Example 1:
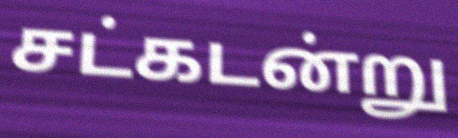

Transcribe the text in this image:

சட்கடன்று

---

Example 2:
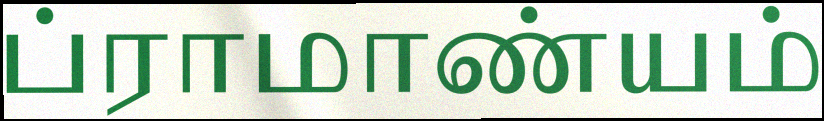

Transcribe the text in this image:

ப்ராமாண்யம்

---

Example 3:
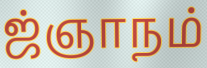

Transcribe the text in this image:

ஜ்ஞாநம்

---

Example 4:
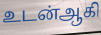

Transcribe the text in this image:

உடன்ஆகி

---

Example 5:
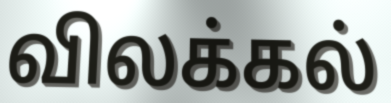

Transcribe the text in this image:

விலக்கல்